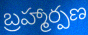
బ్రహ్మార్పణ